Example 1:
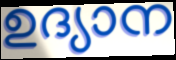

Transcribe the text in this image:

ഉദ്യാന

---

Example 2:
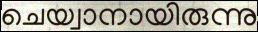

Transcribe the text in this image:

ചെയ്വാനായിരുന്നു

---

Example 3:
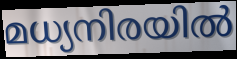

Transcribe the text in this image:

മധ്യനിരയിൽ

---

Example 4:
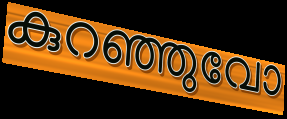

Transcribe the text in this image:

കുറഞ്ഞുവോ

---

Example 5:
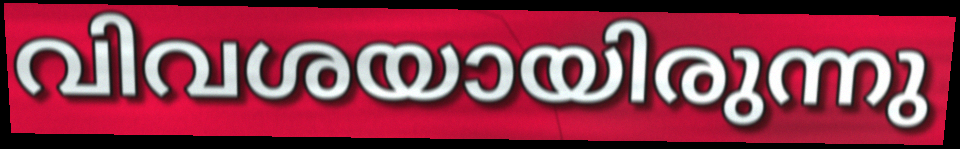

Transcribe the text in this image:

വിവശയായിരുന്നു